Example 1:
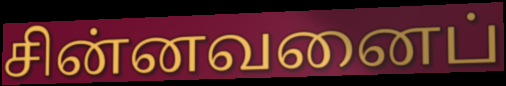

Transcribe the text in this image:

சின்னவனைப்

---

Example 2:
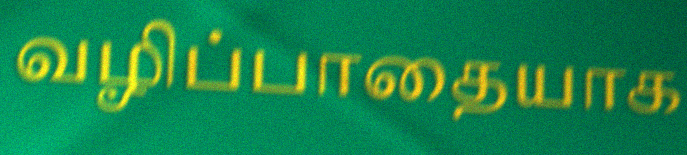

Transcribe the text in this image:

வழிப்பாதையாக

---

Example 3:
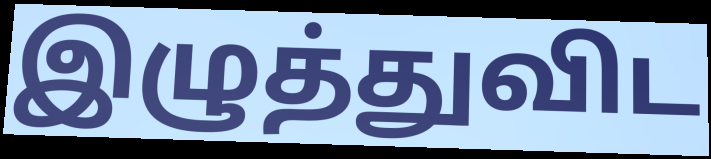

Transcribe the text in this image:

இழுத்துவிட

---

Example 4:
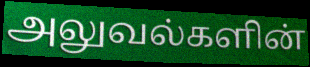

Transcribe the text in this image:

அலுவல்களின்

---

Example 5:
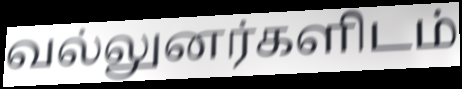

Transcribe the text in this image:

வல்லுனர்களிடம்